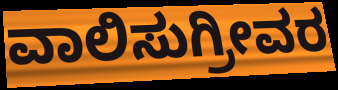
ವಾಲಿಸುಗ್ರೀವರ